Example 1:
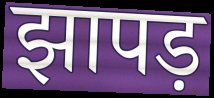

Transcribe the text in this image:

झापड़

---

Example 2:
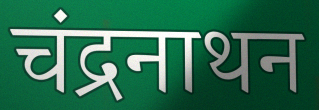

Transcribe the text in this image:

चंद्रनाथन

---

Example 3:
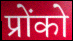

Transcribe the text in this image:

प्रोंको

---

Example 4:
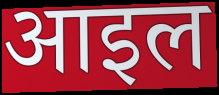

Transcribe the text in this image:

आइल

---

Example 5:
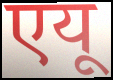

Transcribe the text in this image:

एयू